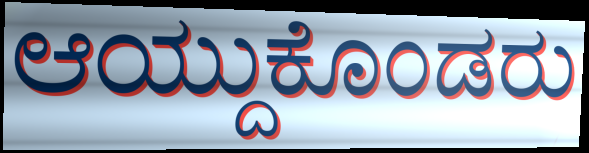
ಆಯ್ದುಕೊಂಡರು